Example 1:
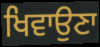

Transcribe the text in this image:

ਖਿਵਾਉਣਾ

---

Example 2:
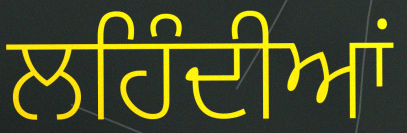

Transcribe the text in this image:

ਲਹਿੰਦੀਆਂ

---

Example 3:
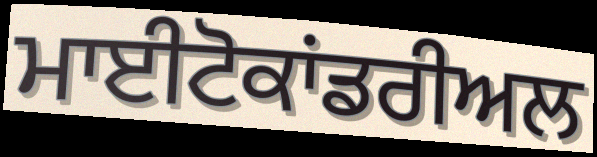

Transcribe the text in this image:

ਮਾਈਟੋਕਾਂਡਰੀਅਲ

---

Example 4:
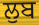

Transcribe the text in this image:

ਲੁਬ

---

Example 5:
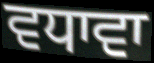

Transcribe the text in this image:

ਵਧਾਵਾ